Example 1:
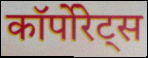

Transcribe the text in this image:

कॉर्पोरेट्स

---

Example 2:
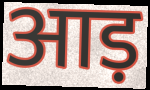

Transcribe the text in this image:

आड़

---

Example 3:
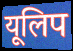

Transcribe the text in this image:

यूलिप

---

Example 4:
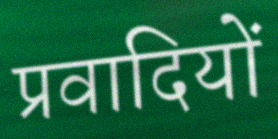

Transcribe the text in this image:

प्रवादियों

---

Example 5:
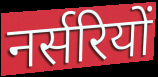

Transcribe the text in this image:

नर्सरियों